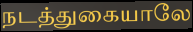
நடத்துகையாலே